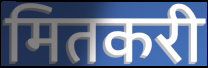
मितकरी